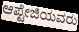
ಆಪ್ಟೇಜಿಯವರು